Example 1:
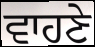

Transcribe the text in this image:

ਵਾਹਣੇ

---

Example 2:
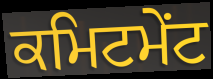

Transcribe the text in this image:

ਕਮਿਟਮੇਂਟ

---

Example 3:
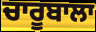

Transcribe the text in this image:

ਚਾਰੂਬਾਲਾ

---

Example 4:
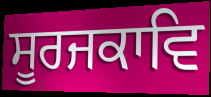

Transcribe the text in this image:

ਸੂਰਜਕਾਵਿ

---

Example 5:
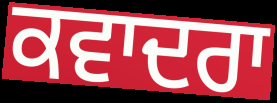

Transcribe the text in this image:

ਕਵਾਦਰਾ